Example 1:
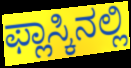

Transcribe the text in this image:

ಫ್ಲಾಸ್ಕಿನಲ್ಲಿ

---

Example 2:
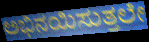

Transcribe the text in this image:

ಅಭಿನಯಿಸುತ್ತಲೇ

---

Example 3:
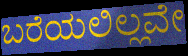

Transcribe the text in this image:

ಬರೆಯಲಿಲ್ಲವೇ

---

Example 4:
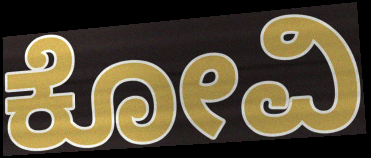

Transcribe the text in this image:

ಕೋವಿ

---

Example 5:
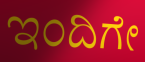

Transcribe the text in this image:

ಇಂದಿಗೇ